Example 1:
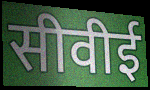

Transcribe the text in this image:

सीवीई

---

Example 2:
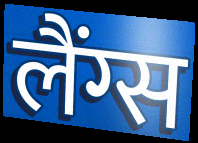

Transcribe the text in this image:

लैंग्स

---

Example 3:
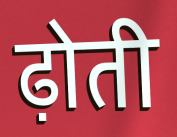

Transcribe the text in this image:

ढ़ोती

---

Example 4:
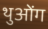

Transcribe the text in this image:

थुओंग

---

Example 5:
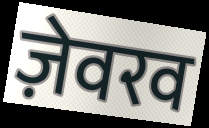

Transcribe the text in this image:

ज़ेवरव